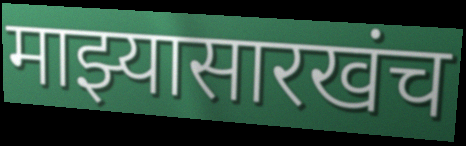
माझ्यासारखंच